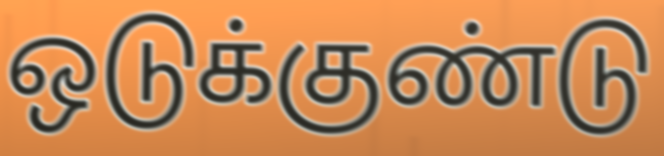
ஒடுக்குண்டு